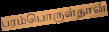
பரம்பொருள்தான்